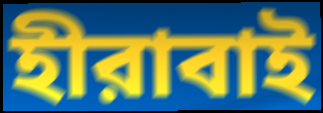
হীরাবাই